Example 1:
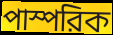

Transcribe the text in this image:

পাস্পরিক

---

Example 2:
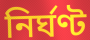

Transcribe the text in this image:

নির্ঘণ্ট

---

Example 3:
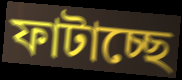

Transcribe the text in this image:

ফাটাচ্ছে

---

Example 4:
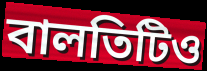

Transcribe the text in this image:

বালতিটিও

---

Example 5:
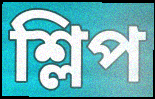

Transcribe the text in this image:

শ্লিপ